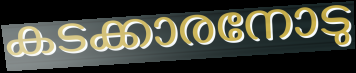
കടക്കാരനോടു